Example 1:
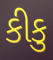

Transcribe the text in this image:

કીકુ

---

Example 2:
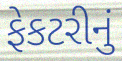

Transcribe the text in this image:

ફેકટરીનું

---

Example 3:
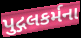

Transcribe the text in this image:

પુદ્ગલકર્મના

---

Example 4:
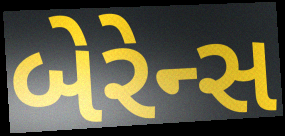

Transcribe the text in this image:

બેરેન્સ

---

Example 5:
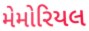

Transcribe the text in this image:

મેમોરિયલ